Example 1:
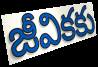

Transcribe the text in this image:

జీవికకు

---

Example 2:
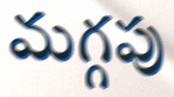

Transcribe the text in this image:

మగ్గపు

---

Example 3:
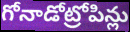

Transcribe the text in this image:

గోనాడోట్రోపిన్లు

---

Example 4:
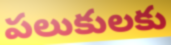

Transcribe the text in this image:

పలుకులకు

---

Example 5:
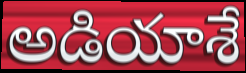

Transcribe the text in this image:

అడియాశే